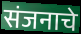
संजनाचे